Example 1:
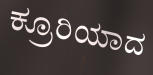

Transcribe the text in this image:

ಕ್ರೂರಿಯಾದ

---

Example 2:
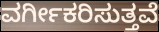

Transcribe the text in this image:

ವರ್ಗೀಕರಿಸುತ್ತವೆ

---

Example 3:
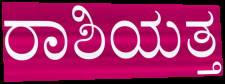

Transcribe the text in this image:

ರಾಶಿಯತ್ತ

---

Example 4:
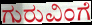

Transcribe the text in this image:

ಗುರುವಿಂಗೆ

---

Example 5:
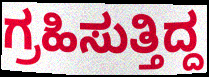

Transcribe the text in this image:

ಗ್ರಹಿಸುತ್ತಿದ್ದ